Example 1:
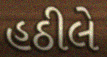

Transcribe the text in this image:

હઠીલે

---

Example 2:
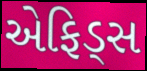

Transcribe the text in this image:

એફિડ્સ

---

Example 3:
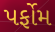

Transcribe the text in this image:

પર્ફોમ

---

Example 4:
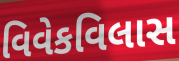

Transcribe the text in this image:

વિવેકવિલાસ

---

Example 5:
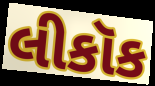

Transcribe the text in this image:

લીકૉક